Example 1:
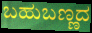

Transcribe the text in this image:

ಬಹುಬಣ್ಣದ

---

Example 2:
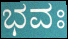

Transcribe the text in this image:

ಭವಃ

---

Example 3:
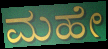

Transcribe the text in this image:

ಮಹೇ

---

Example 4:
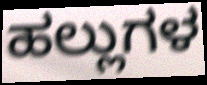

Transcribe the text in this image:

ಹಲ್ಲುಗಳ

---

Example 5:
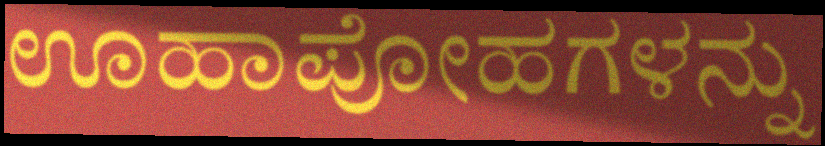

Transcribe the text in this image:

ಊಹಾಪೋಹಗಳನ್ನು